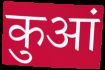
कुआं